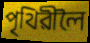
পৃথিৱীলৈ